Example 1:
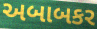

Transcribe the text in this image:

અબાબકર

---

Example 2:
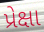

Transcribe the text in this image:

પ્રેક્ષા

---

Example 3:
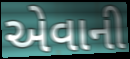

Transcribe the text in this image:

એવાની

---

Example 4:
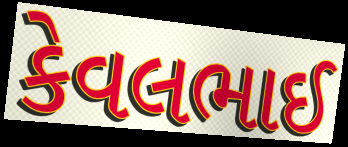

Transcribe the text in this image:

કેવલભાઈ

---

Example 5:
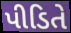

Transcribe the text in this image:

પીડિતે